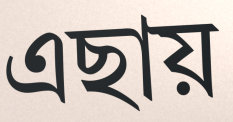
এছায়